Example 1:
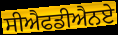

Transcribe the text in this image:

ਸੀਐਫਡੀਐਨਏ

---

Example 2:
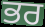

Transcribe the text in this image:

ਭਰ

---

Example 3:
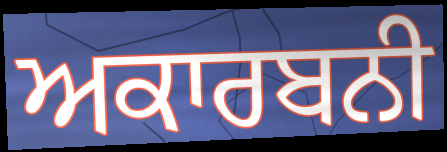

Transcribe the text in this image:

ਅਕਾਰਬਨੀ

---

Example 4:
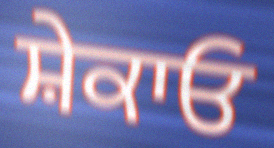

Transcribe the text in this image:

ਸ਼ੇਕਾਓ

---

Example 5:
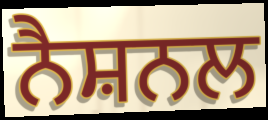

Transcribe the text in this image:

ਨੈਸ਼ਨਲ